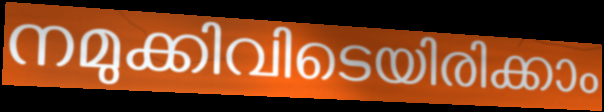
നമുക്കിവിടെയിരിക്കാം